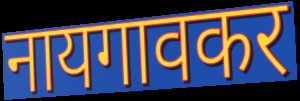
नायगावकर